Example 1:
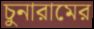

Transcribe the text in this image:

চুনারামের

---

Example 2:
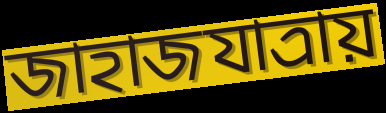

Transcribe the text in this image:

জাহাজযাত্রায়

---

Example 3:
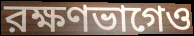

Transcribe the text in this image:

রক্ষণভাগেও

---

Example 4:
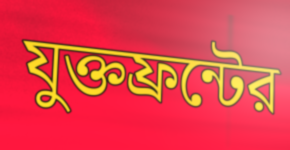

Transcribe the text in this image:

যুক্তফ্রন্টের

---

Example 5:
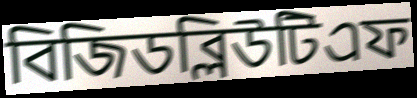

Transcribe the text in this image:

বিজিডব্লিউটিএফ